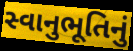
સ્વાનુભૂતિનું